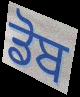
ਡੋਬ